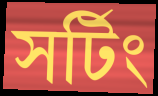
সর্টিং